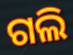
ଗଲି